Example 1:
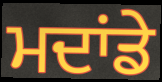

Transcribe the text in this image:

ਮਦਾਂਡੇ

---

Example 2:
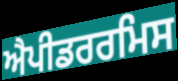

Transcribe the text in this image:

ਐਪੀਡਰਰਮਿਸ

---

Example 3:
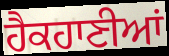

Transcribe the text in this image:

ਹੈਕਹਾਣੀਆਂ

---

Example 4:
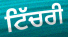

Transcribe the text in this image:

ਟਿੱਚਰੀ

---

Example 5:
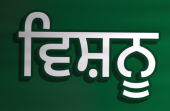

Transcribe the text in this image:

ਵਿਸ਼ਨੂ